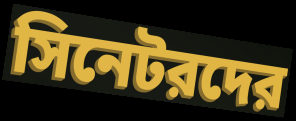
সিনেটরদের